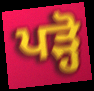
ਪੜ੍ਹੋ